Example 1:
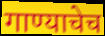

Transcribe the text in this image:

गाण्याचेच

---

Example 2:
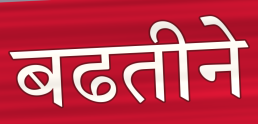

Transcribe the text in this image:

बढतीने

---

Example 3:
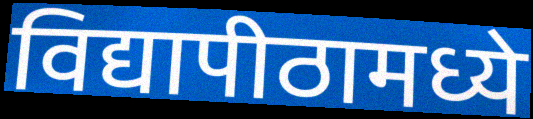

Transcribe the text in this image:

विद्यापीठामध्ये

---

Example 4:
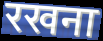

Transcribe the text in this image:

रखना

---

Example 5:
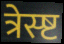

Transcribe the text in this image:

त्रेस्ष्ट